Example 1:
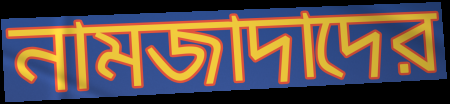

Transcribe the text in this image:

নামজাদাদের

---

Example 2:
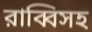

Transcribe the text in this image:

রাব্বিসহ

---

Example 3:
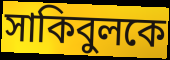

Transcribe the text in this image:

সাকিবুলকে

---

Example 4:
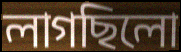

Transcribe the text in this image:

লাগছিলো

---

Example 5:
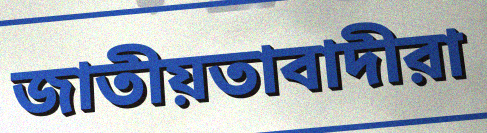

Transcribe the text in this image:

জাতীয়তাবাদীরা